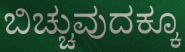
ಬಿಚ್ಚುವುದಕ್ಕೂ